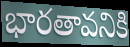
భారతావనికి